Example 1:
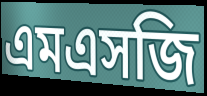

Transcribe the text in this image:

এমএসজি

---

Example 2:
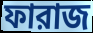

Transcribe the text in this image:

ফারাজ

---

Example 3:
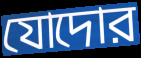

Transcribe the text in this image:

যোদোর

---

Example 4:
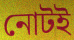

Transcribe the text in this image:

নোটই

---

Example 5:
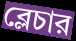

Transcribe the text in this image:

ব্লেচার